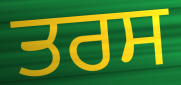
ਤਰਸ